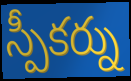
స్పీకర్ను